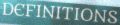
DEFINITIONS